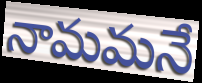
నామమనే